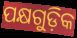
ପକ୍ଷଗୁଡ଼ିକ